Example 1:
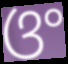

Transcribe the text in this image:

ଓଂ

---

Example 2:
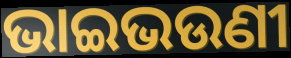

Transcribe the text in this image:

ଭାଇଭଉଣୀ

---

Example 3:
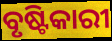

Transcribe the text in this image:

ବୃଷ୍ଟିକାରୀ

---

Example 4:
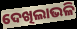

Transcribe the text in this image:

ଦେଖିଲାଭଳି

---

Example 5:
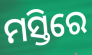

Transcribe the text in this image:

ମସ୍ତିରେ